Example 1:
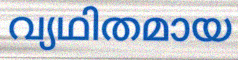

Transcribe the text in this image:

വ്യഥിതമായ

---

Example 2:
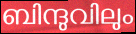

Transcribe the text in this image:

ബിന്ദുവിലും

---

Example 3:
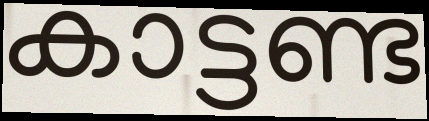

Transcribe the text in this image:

കാട്ടണ്ട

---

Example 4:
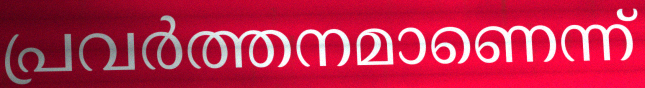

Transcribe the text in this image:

പ്രവർത്തനമാണെന്ന്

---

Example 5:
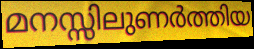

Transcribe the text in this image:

മനസ്സിലുണർത്തിയ